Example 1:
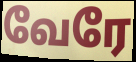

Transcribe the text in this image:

வேரே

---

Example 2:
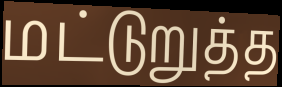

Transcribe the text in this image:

மட்டுறுத்த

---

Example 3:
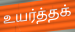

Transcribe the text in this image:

உயர்த்தக்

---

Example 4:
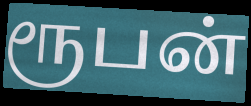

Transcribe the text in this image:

ரூபன்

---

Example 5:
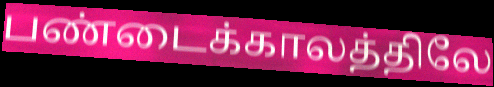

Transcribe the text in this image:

பண்டைக்காலத்திலே